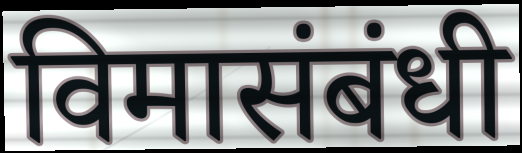
विमासंबंधी